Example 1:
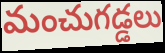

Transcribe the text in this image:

మంచుగడ్డలు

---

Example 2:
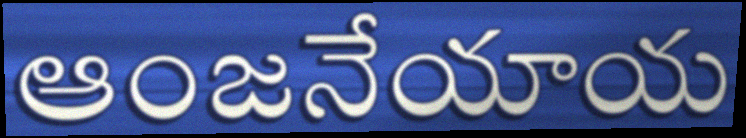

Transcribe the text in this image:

ఆంజనేయాయ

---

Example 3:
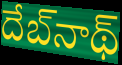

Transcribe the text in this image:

దేబ్‌నాథ్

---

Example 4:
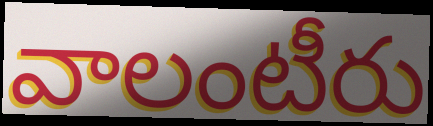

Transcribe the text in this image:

వాలంటీరు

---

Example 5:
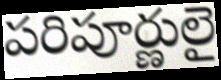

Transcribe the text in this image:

పరిపూర్ణులై